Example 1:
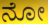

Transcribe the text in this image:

ನೋ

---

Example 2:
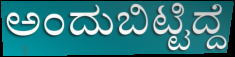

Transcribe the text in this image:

ಅಂದುಬಿಟ್ಟಿದ್ದೆ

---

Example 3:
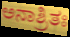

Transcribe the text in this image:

ಅನಾಶ್ರಿತಃ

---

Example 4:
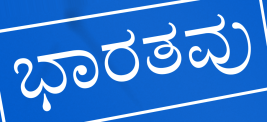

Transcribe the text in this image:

ಭಾರತವು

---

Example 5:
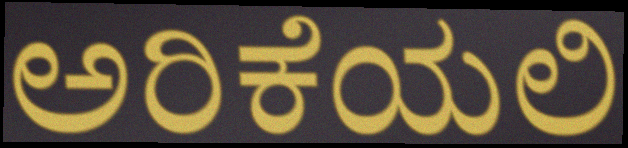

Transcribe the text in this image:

ಅರಿಕೆಯಲಿ